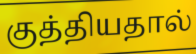
குத்தியதால்